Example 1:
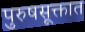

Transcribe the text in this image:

पुरुषसूक्तात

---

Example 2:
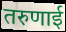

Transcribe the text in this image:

तरुणाई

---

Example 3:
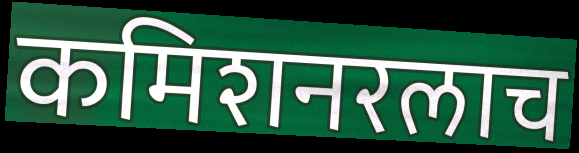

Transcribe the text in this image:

कमिशनरलाच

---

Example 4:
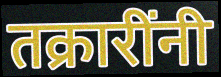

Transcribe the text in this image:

तक्रारींनी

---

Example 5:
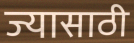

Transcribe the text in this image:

ज्यासाठी